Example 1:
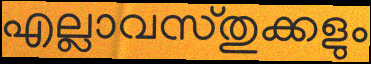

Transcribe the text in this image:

എല്ലാവസ്തുക്കളും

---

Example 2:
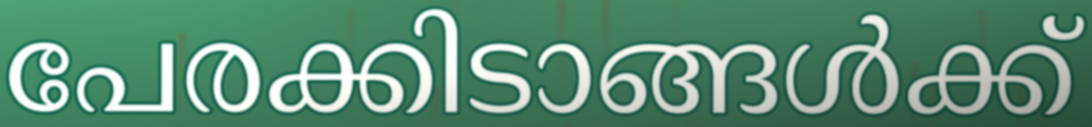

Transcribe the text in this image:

പേരക്കിടാങ്ങൾക്ക്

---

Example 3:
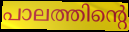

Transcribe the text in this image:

പാലത്തിന്റെ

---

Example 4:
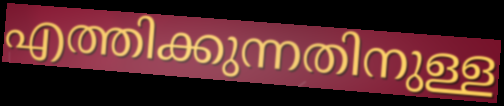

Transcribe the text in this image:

എത്തിക്കുന്നതിനുള്ള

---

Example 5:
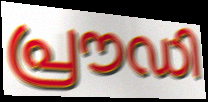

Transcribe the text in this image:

പ്രൗഡി